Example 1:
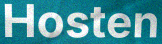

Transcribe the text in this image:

Hosten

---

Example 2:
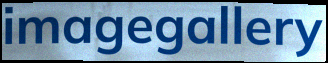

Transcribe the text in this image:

imagegallery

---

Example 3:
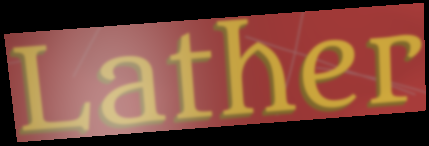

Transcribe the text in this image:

Lather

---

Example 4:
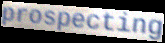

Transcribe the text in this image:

prospecting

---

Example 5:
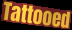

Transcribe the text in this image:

Tattooed